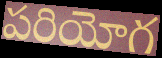
పరియోగ